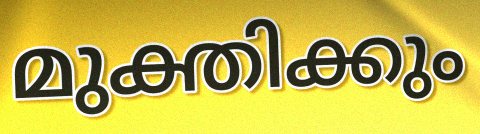
മുക്തിക്കും